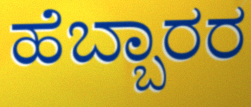
ಹೆಬ್ಬಾರರ